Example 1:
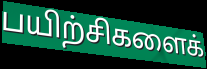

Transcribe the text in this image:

பயிற்சிகளைக்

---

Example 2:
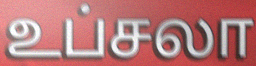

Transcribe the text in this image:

உப்சலா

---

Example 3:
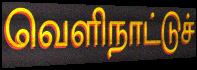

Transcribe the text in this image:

வெளிநாட்டுச்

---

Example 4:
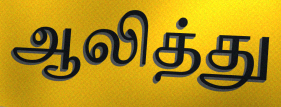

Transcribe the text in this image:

ஆலித்து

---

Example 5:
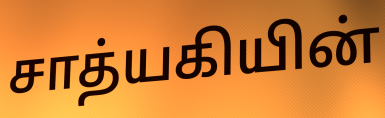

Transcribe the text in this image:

சாத்யகியின்